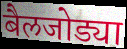
बैलजोड्या